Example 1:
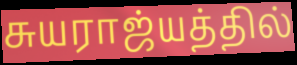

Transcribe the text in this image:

சுயராஜ்யத்தில்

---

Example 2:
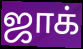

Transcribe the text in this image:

ஜாக்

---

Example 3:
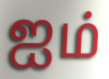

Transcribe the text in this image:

ஐம்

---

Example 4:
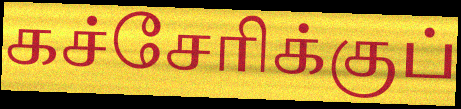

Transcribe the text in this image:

கச்சேரிக்குப்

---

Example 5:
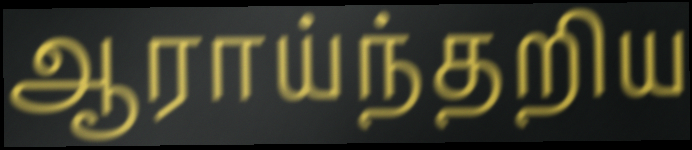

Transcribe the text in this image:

ஆராய்ந்தறிய